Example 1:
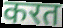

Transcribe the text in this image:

करत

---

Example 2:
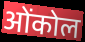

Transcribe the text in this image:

ओंकोल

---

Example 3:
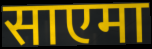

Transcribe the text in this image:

साएमा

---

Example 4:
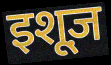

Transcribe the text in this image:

इशूज़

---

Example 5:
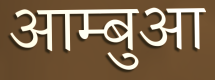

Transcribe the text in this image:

आम्बुआ